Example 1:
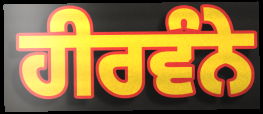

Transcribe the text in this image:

ਹੀਰਵੰਨੇ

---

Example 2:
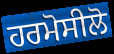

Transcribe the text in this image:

ਹਰਮੋਸੀਲੋ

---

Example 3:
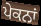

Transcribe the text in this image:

ਪੇਕਨਾਂ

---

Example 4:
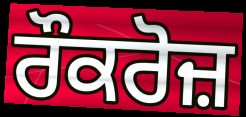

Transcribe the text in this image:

ਰੌਕਰੋਜ਼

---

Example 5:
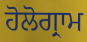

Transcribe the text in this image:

ਹੋਲੋਗ੍ਰਾਮ